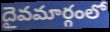
దైవమార్గంలో